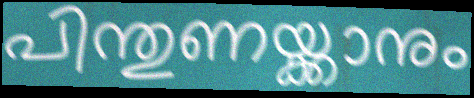
പിന്തുണയ്ക്കാനും